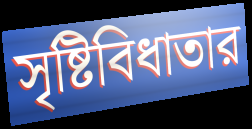
সৃষ্টিবিধাতার